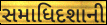
સમાધિદશાની